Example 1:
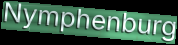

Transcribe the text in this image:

Nymphenburg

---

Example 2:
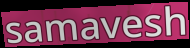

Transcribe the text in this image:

samavesh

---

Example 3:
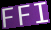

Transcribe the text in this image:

FFI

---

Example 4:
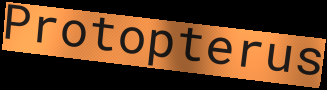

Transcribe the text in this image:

Protopterus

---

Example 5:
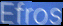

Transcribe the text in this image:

Efros